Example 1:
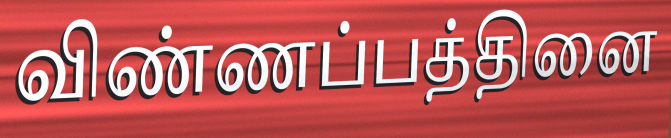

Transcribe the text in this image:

விண்ணப்பத்தினை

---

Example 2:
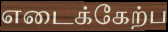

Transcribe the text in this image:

எடைக்கேற்ப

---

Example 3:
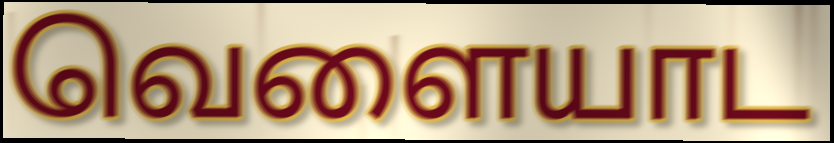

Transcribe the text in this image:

வெளையாட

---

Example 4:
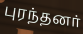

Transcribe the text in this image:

புரந்தனர்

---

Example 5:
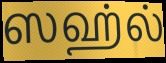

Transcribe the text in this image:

ஸஹ்ல்